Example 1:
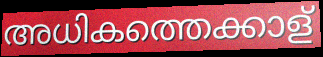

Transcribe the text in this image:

അധികത്തെക്കാള്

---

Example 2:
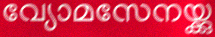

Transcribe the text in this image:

വ്യോമസേനയ്ക്കു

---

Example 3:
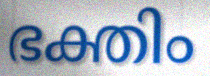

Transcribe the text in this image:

ഭക്തിം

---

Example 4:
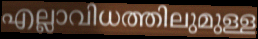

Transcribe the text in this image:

എല്ലാവിധത്തിലുമുള്ള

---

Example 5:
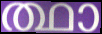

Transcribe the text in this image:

ത്ഥാ